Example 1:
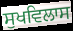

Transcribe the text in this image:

ਸੁਖਵਿਲਾਸ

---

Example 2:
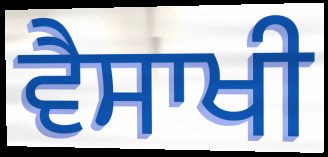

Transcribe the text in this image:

ਵੈਸਾਖੀ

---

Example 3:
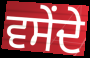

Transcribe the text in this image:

ਵਸੇਂਦੇ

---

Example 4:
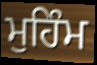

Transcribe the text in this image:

ਮੁਹਿੰਮ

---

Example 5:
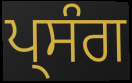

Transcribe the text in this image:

ਪ੍ਸੰਗ